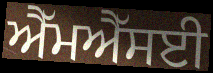
ਐੱਮਐੱਸਈ